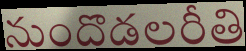
నుందొడలరీతి